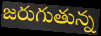
జరుగుతున్న